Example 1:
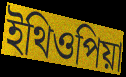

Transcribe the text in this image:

ইথিওপিয়া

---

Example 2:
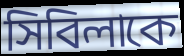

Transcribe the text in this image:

সিবিলাকে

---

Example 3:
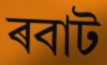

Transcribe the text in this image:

ৰবাট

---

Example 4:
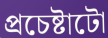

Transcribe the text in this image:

প্ৰচেষ্টাটো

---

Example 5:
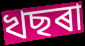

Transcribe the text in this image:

খছৰা